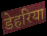
डेहरिया